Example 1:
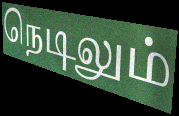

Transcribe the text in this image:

நெடிலும்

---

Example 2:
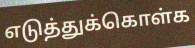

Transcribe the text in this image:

எடுத்துக்கொள்க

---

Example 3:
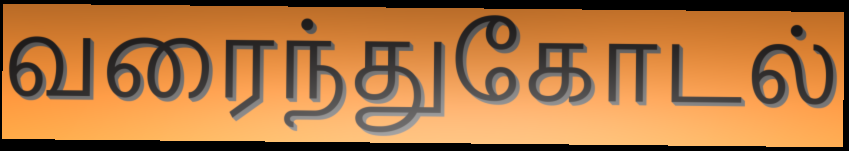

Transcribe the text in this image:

வரைந்துகோடல்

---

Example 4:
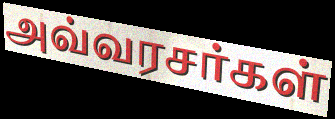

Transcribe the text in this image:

அவ்வரசர்கள்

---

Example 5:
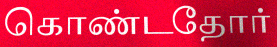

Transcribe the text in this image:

கொண்டதோர்